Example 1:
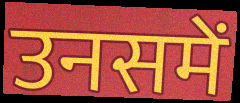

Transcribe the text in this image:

उनसमें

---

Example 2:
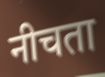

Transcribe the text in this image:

नीचता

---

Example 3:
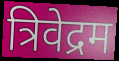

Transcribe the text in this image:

त्रिवेद्रम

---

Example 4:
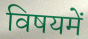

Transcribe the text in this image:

विषयमें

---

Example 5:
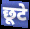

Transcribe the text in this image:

छूटे